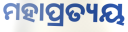
ମହାପ୍ରତ୍ୟୟ